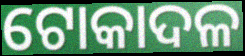
ଟୋକାଦଳ